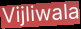
Vijliwala